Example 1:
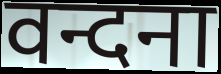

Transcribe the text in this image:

वन्दना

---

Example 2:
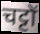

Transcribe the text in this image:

चट्टों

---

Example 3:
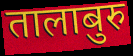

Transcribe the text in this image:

तालाबुरु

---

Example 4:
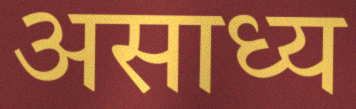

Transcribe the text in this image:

असाध्य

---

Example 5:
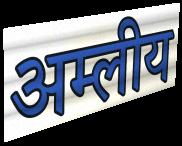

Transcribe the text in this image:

अम्लीय